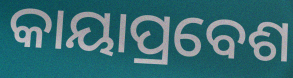
କାୟାପ୍ରବେଶ